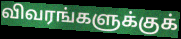
விவரங்களுக்குக்